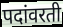
पदांवरती